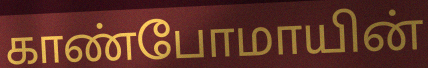
காண்போமாயின்